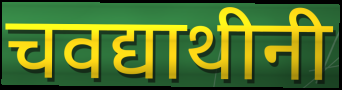
चवद्याथीनी